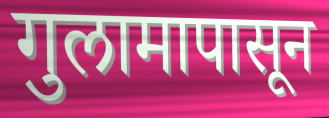
गुलामापासून